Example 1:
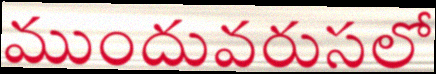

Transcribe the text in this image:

ముందువరుసలో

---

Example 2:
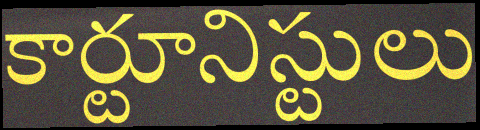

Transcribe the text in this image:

కార్టూనిస్టులు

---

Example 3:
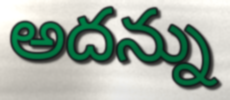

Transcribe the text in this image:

అదన్ను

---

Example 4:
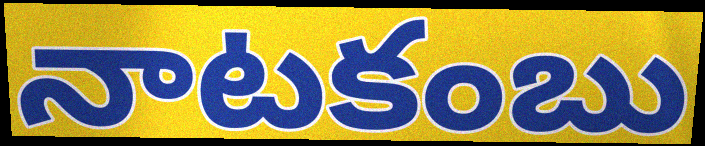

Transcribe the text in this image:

నాటకంబు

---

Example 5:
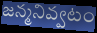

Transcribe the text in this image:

జన్మనివ్వటం